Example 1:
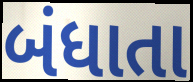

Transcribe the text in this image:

બંધાતા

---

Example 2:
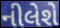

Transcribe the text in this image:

નીલેશે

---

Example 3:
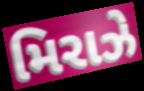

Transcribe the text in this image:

મિરાઝે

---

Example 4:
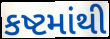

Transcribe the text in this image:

કષ્ટમાંથી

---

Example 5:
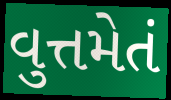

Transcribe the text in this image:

વુત્તમેતં